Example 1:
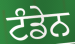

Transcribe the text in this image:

ਟੰਡੇਨ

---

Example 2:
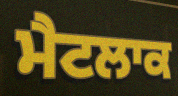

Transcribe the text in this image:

ਮੈਟਲਾਕ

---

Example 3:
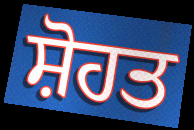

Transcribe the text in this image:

ਸ਼ੋਹਤ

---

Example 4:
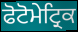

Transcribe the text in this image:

ਫੋਟੋਮੇਟ੍ਰਿਕ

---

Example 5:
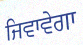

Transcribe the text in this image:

ਜਿਵਾਵੇਗਾ